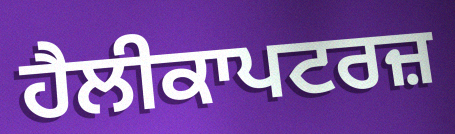
ਹੈਲੀਕਾਪਟਰਜ਼